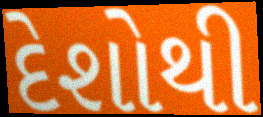
દેશોથી